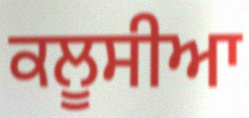
ਕਲੂਸੀਆ